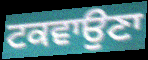
ਟਕਵਾਉਣਾ